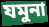
যমুনা